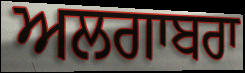
ਅਲਗਾਬਰਾ